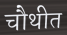
चौथीत